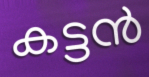
കട്ടൻ